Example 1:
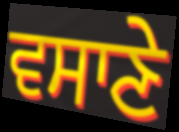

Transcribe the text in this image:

ਵਸਾਣੇ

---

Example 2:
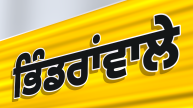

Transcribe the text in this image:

ਭਿੰਡਰਾਂਵਾਲੇ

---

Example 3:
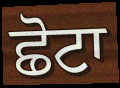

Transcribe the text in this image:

ਛੋਟਾ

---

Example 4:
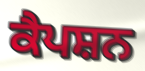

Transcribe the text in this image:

ਕੈਪਸ਼ਨ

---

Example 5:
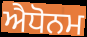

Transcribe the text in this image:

ਐਧੋਨਮ